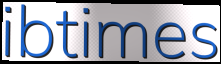
ibtimes